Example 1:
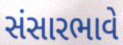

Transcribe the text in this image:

સંસારભાવે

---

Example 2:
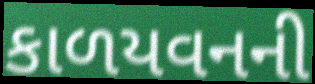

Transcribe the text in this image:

કાળયવનની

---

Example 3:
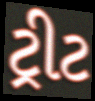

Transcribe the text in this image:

ટ્રીટ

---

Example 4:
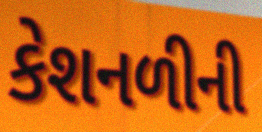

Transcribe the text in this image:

કેશનળીની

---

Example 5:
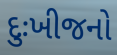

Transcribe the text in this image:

દુઃખીજનો